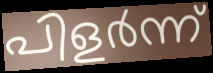
പിളർന്ന്